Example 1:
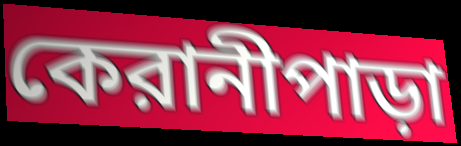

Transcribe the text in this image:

কেরানীপাড়া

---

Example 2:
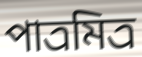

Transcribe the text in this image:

পাত্রমিত্র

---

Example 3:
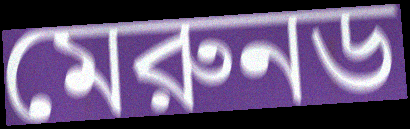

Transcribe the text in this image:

মেরুনড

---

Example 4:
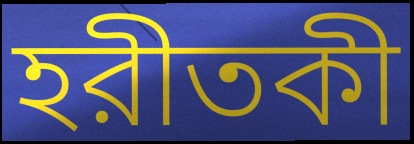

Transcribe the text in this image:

হরীতকী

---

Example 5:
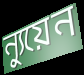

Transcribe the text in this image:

ন্যুয়েন